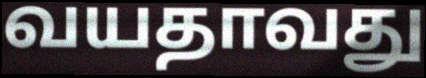
வயதாவது